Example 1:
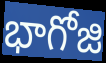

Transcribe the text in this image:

భాగోజి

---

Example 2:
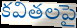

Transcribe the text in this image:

కవితలపై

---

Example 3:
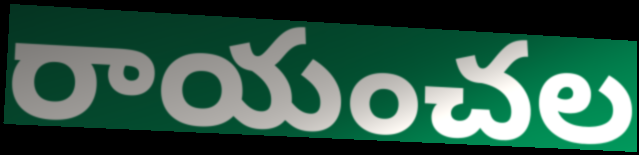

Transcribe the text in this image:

రాయంచల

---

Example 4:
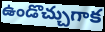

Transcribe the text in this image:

ఉండొచ్చుగాక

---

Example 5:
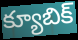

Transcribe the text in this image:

క్యూబిక్